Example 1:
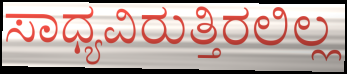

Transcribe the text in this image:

ಸಾಧ್ಯವಿರುತ್ತಿರಲಿಲ್ಲ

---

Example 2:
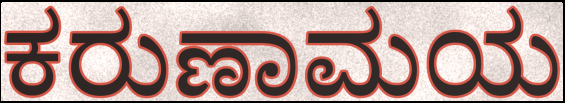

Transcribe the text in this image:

ಕರುಣಾಮಯ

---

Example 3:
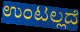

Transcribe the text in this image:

ಉಂಟಲ್ಲದೆ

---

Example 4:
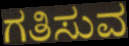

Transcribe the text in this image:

ಗತಿಸುವ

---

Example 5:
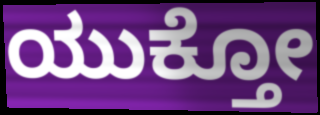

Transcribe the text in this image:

ಯುಕ್ತೋ